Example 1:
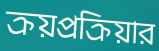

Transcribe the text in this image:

ক্রয়প্রক্রিয়ার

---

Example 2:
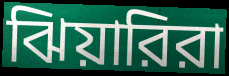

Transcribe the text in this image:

ঝিয়ারিরা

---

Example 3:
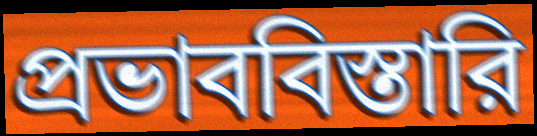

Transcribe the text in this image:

প্রভাববিস্তারি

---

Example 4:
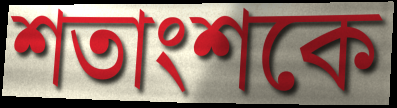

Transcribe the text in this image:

শতাংশকে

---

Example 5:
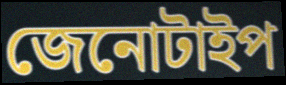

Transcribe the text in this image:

জেনোটাইপ